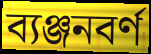
ব্যঞ্জনবৰ্ণ